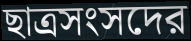
ছাত্রসংসদের